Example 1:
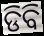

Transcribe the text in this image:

ଡିବି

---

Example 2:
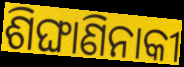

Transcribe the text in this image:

ଶିଙ୍ଘାଣିନାକୀ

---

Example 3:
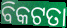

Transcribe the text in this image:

ବିକଟତା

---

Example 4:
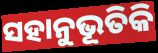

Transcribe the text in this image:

ସହାନୁଭୂତିକି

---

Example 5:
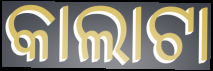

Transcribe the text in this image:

କାଲାଟା